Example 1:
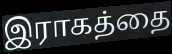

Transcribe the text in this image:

இராகத்தை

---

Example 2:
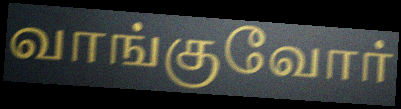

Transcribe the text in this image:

வாங்குவோர்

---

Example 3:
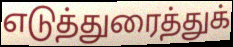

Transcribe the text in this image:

எடுத்துரைத்துக்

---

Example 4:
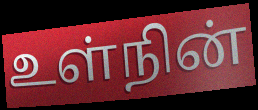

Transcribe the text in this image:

உள்நின்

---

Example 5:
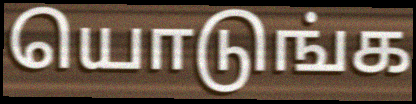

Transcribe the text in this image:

யொடுங்க